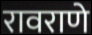
रावराणे